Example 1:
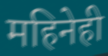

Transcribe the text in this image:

महिनेही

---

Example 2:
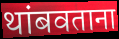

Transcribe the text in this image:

थांबवताना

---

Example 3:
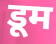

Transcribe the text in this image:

डूम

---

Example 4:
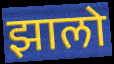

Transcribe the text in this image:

झालो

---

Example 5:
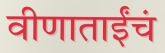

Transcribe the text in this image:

वीणाताईंचं